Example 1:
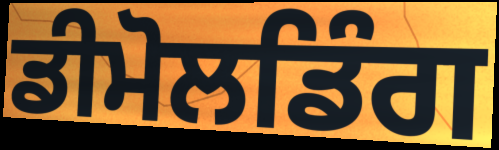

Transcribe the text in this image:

ਡੀਮੋਲਡਿੰਗ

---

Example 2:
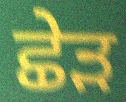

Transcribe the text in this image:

ਛੇੜ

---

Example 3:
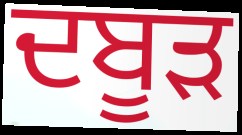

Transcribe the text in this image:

ਦਬੂੜ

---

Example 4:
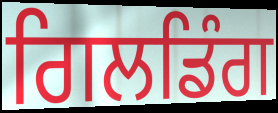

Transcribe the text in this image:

ਗਿਲਡਿੰਗ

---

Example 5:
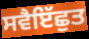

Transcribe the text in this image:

ਸਵੈਇੱਛੁਤ